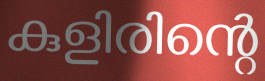
കുളിരിന്റെ